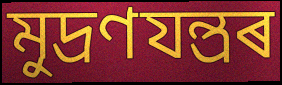
মুদ্ৰণযন্ত্ৰৰ